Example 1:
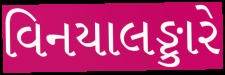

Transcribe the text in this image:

વિનયાલઙ્કારે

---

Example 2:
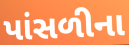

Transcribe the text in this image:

પાંસળીના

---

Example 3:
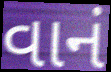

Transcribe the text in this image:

વાનં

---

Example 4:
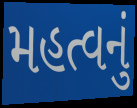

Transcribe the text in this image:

મહત્વનું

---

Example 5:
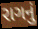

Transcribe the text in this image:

રાગનું